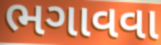
ભગાવવા